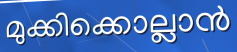
മുക്കിക്കൊല്ലാൻ